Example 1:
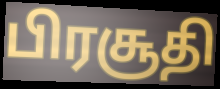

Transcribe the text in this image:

பிரசூதி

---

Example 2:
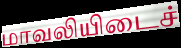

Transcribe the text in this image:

மாவலியிடைச்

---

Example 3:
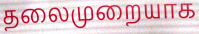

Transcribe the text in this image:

தலைமுறையாக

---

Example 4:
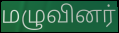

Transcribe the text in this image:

மழுவினர்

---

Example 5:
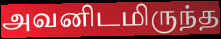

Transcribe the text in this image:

அவனிடமிருந்த